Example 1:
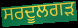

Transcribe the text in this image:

ਸਰਦੂਲਗੜ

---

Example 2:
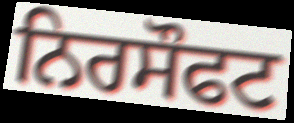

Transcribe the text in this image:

ਨਿਰਸੌਫਟ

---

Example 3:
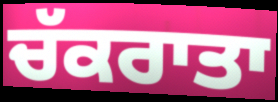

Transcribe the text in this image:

ਚੱਕਰਾਤਾ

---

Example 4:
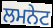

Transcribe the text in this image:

ਲਮਨੇਟ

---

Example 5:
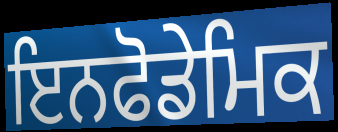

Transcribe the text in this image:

ਇਨਫੋਡੇਮਿਕ